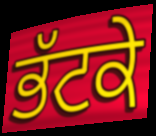
ਭੱਟਕੇ